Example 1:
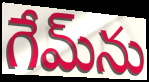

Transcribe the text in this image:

గేమ్‌ను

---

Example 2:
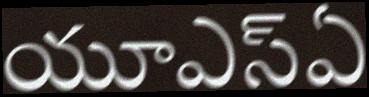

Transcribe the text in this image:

యూఎస్ఏ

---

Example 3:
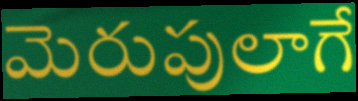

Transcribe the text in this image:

మెరుపులాగే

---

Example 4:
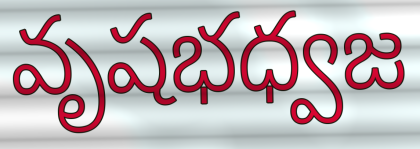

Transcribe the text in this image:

వృషభధ్వజ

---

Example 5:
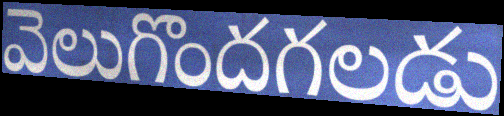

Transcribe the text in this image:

వెలుగొందగలడు